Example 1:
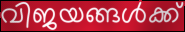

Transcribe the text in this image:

വിജയങ്ങൾക്ക്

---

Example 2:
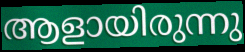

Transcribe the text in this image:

ആളായിരുന്നു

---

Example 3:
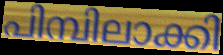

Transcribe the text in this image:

പിമ്പിലാക്കി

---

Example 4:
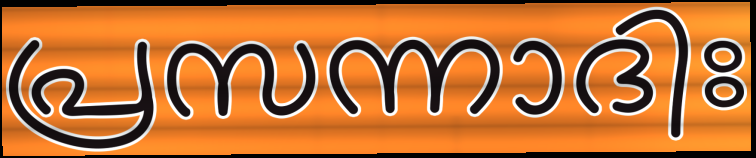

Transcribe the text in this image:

പ്രസന്നാദിഃ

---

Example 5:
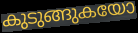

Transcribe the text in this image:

കുടുങ്ങുകയോ